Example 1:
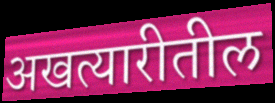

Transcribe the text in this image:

अखत्यारीतील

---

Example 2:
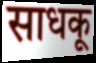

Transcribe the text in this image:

साधकू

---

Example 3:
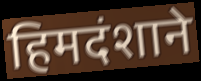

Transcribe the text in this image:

हिमदंशाने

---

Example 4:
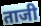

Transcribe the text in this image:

ताजी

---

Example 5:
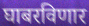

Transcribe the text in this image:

घाबरविणार